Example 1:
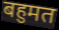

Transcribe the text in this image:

बहुमत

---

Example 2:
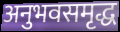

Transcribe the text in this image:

अनुभवसमृद्ध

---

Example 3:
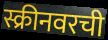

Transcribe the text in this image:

स्क्रीनवरची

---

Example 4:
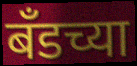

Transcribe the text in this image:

बँडच्या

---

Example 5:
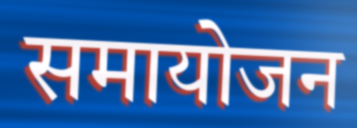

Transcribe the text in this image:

समायोजन